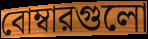
বোম্বারগুলো